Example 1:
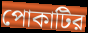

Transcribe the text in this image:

পোকাটির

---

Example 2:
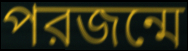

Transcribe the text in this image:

পরজন্মে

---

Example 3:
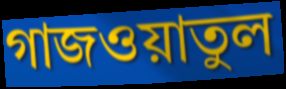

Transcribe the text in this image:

গাজওয়াতুল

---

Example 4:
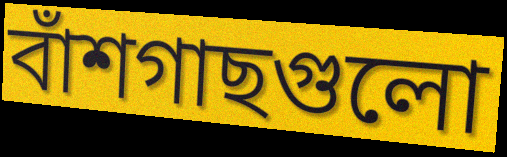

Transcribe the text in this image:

বাঁশগাছগুলো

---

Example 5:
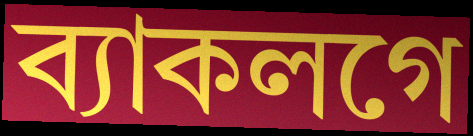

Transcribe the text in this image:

ব্যাকলগে